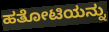
ಹತೋಟಿಯನ್ನು